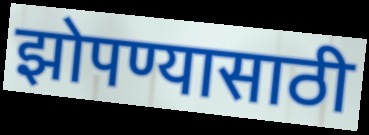
झोपण्यासाठी